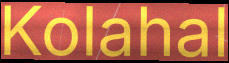
Kolahal